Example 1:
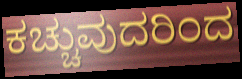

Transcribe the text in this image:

ಕಚ್ಚುವುದರಿಂದ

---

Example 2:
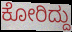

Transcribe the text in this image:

ಕೋರಿದ್ದು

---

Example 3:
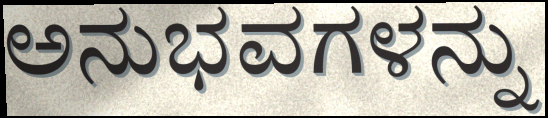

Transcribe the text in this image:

ಅನುಭವಗಳನ್ನು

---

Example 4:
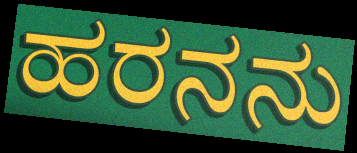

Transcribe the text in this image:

ಹರನನು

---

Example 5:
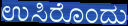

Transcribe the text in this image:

ಉಸಿರೊಂದು